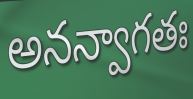
అనన్వాగతః